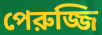
পেরুজ্জি